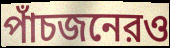
পাঁচজনেরও